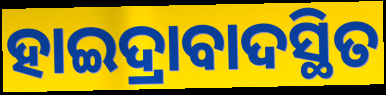
ହାଇଦ୍ରାବାଦସ୍ଥିତ